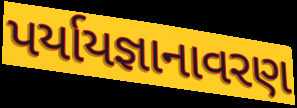
પર્યાયજ્ઞાનાવરણ